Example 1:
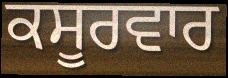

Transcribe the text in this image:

ਕਸੂਰਵਾਰ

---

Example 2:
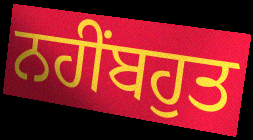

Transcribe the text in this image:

ਨਹੀਂਬਹੁਤ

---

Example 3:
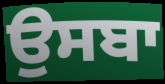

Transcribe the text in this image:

ਉਸਬਾ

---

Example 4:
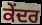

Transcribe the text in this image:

ਕੇੰਦਰ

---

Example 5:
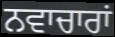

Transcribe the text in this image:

ਨਵਾਚਾਰਾਂ